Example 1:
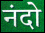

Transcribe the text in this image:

नंदो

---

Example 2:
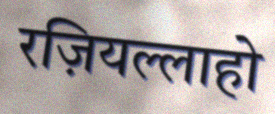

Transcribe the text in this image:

रज़ियल्लाहो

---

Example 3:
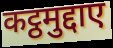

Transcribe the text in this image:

कट्ठमुद्दाए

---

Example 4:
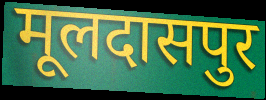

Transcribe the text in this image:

मूलदासपुर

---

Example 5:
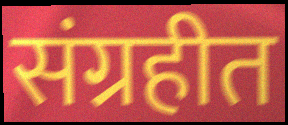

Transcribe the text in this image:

संग्रहीत